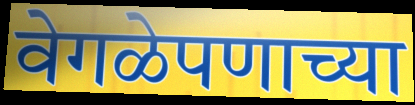
वेगळेपणाच्या